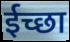
ईच्छा